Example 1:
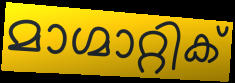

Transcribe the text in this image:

മാഗ്മാറ്റിക്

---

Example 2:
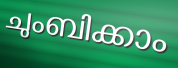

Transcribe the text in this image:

ചുംബിക്കാം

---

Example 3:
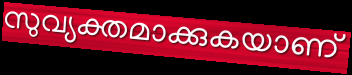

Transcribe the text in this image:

സുവ്യക്തമാക്കുകയാണ്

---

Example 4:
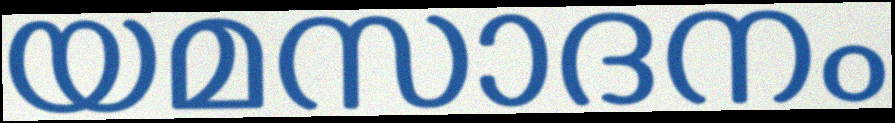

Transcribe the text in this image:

യമസാദനം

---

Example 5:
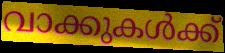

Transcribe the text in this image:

വാക്കുകൾക്ക്